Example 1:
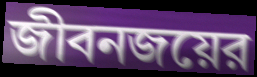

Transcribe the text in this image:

জীবনজয়ের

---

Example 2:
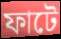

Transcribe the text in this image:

ফাটে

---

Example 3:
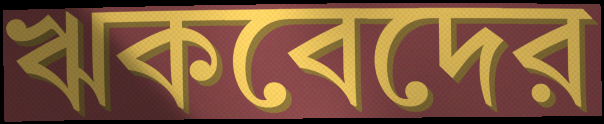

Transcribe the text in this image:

ঋকবেদের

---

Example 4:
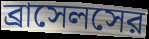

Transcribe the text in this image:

ব্রাসেলসের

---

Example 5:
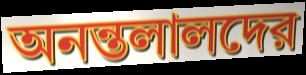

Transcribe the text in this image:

অনন্তলালদের